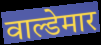
वाल्डेमार